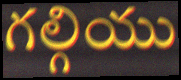
గల్గియు